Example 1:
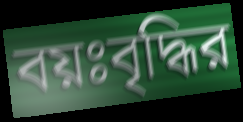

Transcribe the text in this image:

বয়ঃবৃদ্ধির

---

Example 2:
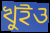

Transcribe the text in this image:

খুইও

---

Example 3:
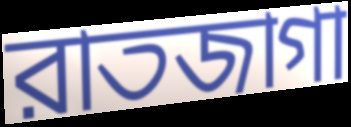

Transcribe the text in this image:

রাতজাগা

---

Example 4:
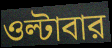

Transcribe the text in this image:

ওল্টাবার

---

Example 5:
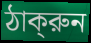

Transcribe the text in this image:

ঠাক্‌রুন